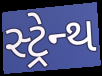
સ્ટ્રેન્થ